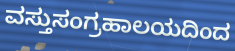
ವಸ್ತುಸಂಗ್ರಹಾಲಯದಿಂದ